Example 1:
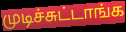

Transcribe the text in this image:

முடிச்சுட்டாங்க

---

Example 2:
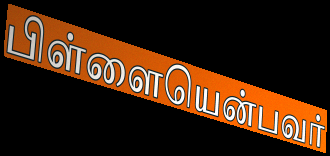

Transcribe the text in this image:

பிள்ளையென்பவர்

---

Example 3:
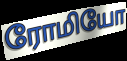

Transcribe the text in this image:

ரோமியோ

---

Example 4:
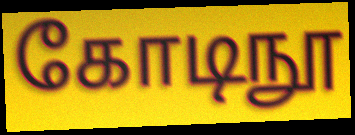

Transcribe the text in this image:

கோடிநூ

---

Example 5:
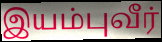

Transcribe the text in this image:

இயம்புவீர்